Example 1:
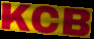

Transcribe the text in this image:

KCB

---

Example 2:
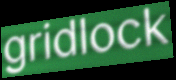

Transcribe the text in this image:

gridlock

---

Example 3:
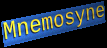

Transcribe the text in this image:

Mnemosyne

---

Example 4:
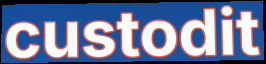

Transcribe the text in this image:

custodit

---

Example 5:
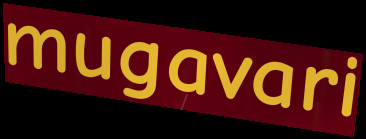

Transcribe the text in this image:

mugavari